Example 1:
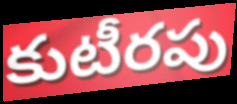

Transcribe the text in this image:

కుటీరపు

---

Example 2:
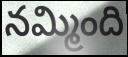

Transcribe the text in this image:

నమ్మింది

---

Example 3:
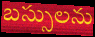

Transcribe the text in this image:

బస్సులను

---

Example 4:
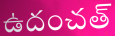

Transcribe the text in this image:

ఉదంచత్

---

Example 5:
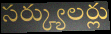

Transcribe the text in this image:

సర్క్యులర్లు